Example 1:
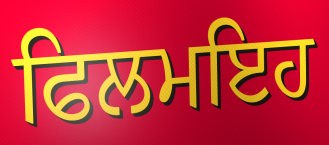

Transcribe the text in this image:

ਫਿਲਮਇਹ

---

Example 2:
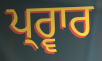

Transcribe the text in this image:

ਪ੍ਰ੍ਵਾਰ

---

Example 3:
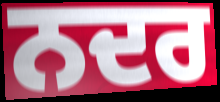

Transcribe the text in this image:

ਨਦਰ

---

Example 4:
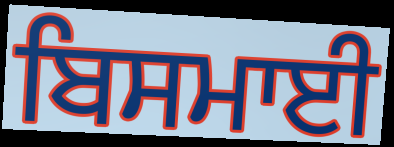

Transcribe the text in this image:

ਬਿਸਮਾਈ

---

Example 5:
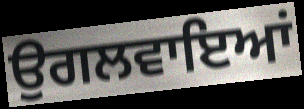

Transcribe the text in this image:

ਉਗਲਵਾਇਆਂ